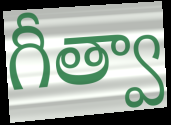
గీత్వా